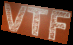
VTF